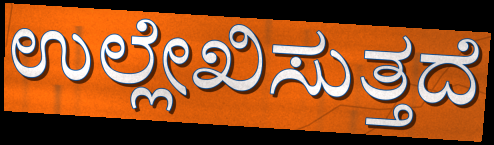
ಉಲ್ಲೇಖಿಸುತ್ತದೆ